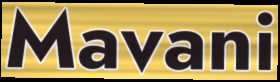
Mavani